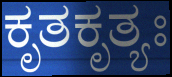
ಕೃತಕೃತ್ಯಃ